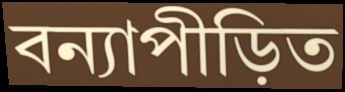
বন্যাপীড়িত